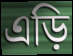
এড়ি